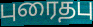
புரைதபு